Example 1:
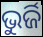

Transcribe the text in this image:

ଭୁର୍ଜି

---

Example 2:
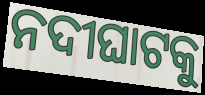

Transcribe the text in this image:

ନଦୀଘାଟକୁ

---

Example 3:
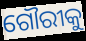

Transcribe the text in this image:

ଗୌରୀକୁ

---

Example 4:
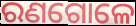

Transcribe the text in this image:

ରଣଗୋଳେ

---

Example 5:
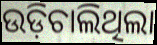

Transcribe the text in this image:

ଉଡ଼ିଚାଲିଥିଲା